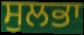
ਸੁਲਭਾ